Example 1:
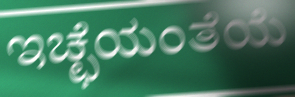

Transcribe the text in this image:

ಇಚ್ಛೆಯಂತೆಯೆ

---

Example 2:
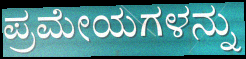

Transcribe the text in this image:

ಪ್ರಮೇಯಗಳನ್ನು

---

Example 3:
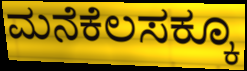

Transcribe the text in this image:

ಮನೆಕೆಲಸಕ್ಕೂ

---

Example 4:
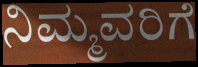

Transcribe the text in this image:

ನಿಮ್ಮವರಿಗೆ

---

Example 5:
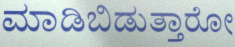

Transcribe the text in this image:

ಮಾಡಿಬಿಡುತ್ತಾರೋ